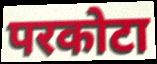
परकोटा